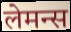
लेमन्स